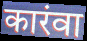
कारंवा